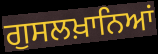
ਗੁਸਲਖ਼ਾਨਿਆਂ